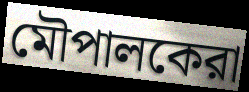
মৌপালকেরা